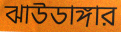
ঝাউডাঙ্গার